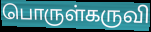
பொருள்கருவி